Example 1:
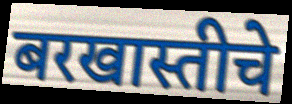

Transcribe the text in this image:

बरखास्तीचे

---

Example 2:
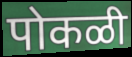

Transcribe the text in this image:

पोकळी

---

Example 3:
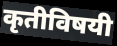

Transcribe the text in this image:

कृतीविषयी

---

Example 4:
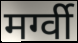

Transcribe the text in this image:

मर्ग्वी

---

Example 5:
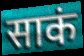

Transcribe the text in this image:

साकं